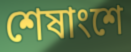
শেষাংশে